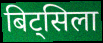
बिट्सिला